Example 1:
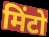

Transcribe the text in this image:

मिंटो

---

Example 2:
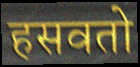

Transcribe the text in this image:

हसवतो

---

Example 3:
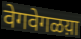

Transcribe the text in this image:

वेगवेगळय़ा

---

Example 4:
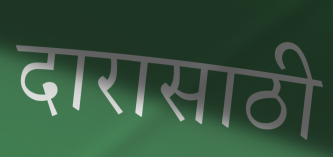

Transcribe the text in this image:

दारासाठी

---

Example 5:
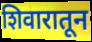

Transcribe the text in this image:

शिवारातून